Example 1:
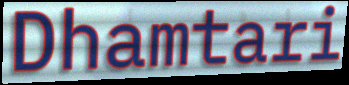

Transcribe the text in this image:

Dhamtari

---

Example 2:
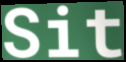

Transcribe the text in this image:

Sit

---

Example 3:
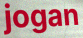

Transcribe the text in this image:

jogan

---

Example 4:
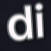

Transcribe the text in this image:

di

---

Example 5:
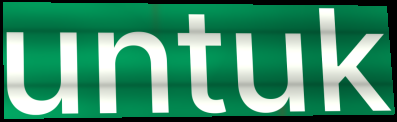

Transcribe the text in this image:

untuk